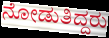
ನೋಡುತಿದ್ದರು